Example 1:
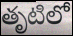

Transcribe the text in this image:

తృటిలో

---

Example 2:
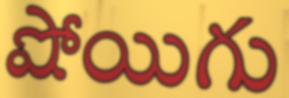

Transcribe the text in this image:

షోయిగు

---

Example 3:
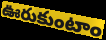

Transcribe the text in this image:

ఊరుకుంటాం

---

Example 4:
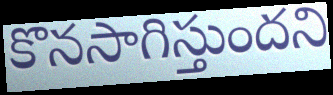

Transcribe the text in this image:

కొనసాగిస్తుందని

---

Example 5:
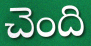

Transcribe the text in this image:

చెంది